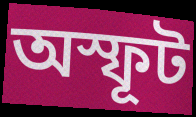
অস্ফূট